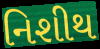
નિશીથ